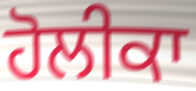
ਹੋਲੀਕਾ